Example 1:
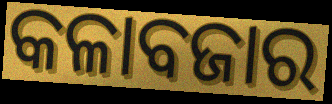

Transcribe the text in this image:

କଳାବଜାର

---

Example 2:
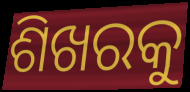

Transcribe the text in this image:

ଶିଖରକୁ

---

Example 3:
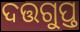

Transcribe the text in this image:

ଦତ୍ତଗୁପ୍ତ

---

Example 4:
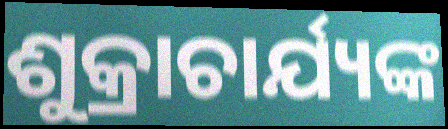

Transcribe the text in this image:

ଶୁକ୍ରାଚାର୍ଯ୍ୟଙ୍କ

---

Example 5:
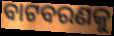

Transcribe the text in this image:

ବାଟବରଣକୁ